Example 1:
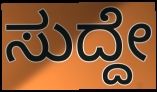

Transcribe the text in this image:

ಸುದ್ದೇ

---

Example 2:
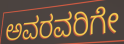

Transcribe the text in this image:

ಅವರವರಿಗೇ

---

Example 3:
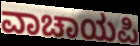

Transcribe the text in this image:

ವಾಚಾಯಪಿ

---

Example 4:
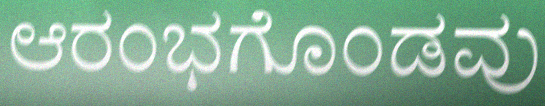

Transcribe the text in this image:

ಆರಂಭಗೊಂಡವು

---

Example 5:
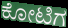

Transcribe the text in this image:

ಕೋಟಿಗ